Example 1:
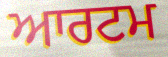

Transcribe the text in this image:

ਆਰਟਮ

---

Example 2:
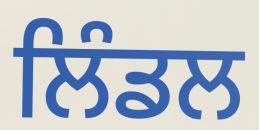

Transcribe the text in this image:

ਲਿੰਡਲ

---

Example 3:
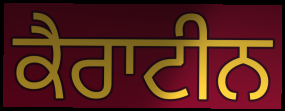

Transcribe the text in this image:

ਕੈਰਾਟੀਨ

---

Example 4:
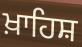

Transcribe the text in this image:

ਖ਼ਾਹਿਸ਼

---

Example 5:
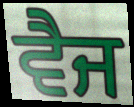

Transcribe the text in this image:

ਵੈਜ